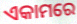
ଏକାମରେ